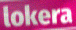
lokera